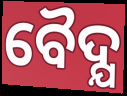
ବୈଦ୍ଯ